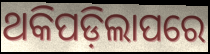
ଥକିପଡ଼ିଲାପରେ